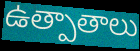
ఉత్పాతాలు